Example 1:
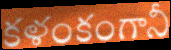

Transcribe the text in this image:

కళంకంగానీ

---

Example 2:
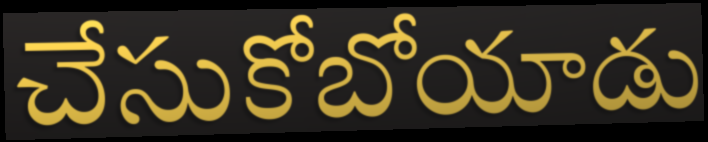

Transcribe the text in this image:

చేసుకోబోయాడు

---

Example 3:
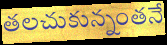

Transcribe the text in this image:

తలచుకున్నంతనే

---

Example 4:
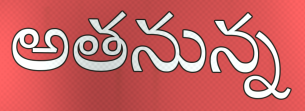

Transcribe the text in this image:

అతనున్న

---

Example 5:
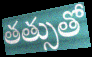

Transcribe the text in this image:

తత్సుతో